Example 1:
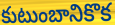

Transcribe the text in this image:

కుటుంబానికొక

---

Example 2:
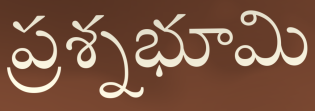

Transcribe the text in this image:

ప్రశ్నభూమి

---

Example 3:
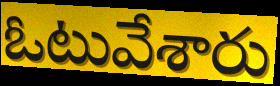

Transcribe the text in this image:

ఓటువేశారు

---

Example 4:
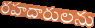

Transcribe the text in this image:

రహదారులను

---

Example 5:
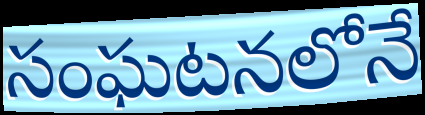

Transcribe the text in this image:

సంఘటనలోనే